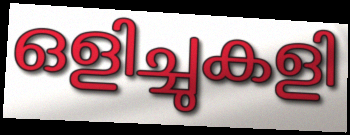
ഒളിച്ചുകളി